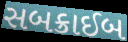
સબક્રાઈબ